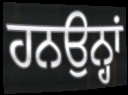
ਹਨਉਨ੍ਹਾਂ